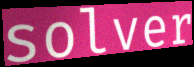
solver